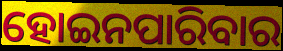
ହୋଇନପାରିବାର